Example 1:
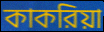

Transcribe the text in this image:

কাকরিয়া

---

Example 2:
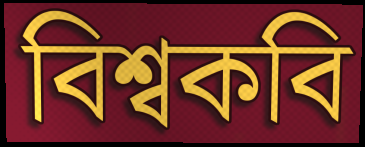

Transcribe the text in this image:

বিশ্বকবি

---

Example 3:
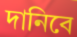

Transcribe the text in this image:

দানিবে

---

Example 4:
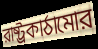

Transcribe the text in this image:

রাষ্ট্রকাঠামোর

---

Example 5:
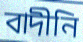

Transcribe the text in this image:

বাদীনি